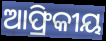
ଆଫ୍ରିକୀୟ